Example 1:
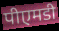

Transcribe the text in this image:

पीएमडी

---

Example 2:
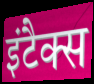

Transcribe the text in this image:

इंटैक्स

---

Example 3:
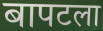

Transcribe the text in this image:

बापटला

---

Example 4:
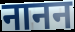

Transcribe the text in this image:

नानन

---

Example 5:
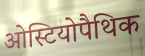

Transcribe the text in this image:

ओस्टियोपैथिक